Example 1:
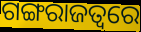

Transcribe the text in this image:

ଗଙ୍ଗରାଜତ୍ୱରେ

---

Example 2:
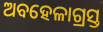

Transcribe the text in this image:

ଅବହେଳାଗ୍ରସ୍ତ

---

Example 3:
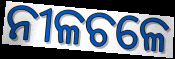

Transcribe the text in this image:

ନୀଳଚଳେ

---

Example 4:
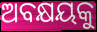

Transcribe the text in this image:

ଅବକ୍ଷୟକୁ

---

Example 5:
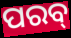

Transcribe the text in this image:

ପରବ୍